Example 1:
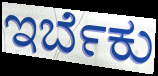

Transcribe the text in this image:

ಇರ್ಬೆಕು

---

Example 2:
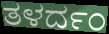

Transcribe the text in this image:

ತಳರ್ದಂ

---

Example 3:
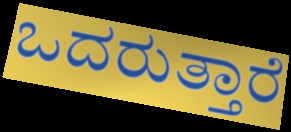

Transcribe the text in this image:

ಒದರುತ್ತಾರೆ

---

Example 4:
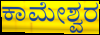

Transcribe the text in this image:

ಕಾಮೇಶ್ವರ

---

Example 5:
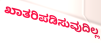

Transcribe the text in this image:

ಖಾತರಿಪಡಿಸುವುದಿಲ್ಲ